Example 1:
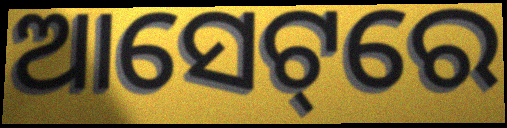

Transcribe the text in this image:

ଆସେଟ୍‌ରେ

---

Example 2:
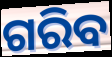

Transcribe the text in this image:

ଗରିବ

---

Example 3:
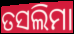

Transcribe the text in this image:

ତସଲିମା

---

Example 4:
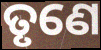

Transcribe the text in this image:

ତୃଣେ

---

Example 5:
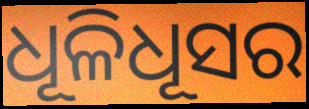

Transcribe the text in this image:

ଧୂଳିଧୂସର